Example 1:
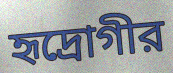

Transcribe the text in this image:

হৃদ্রোগীর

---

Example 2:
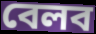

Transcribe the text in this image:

বেলব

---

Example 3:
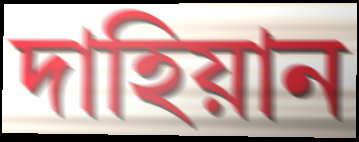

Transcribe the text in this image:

দাহিয়ান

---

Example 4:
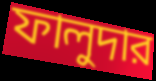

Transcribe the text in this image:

ফালুদার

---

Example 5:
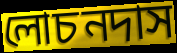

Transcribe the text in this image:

লোচনদাস